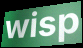
wisp